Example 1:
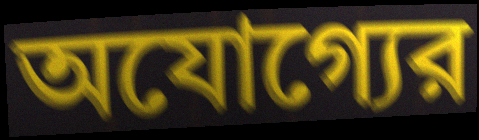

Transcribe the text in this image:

অযোগ্যের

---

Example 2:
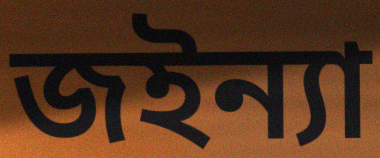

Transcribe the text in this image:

জইন্যা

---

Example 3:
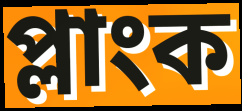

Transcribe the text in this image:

প্লাংক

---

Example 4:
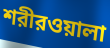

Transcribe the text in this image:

শরীরওয়ালা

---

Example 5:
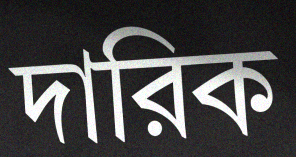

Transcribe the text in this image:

দারিক